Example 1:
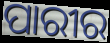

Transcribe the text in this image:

ପାରୀର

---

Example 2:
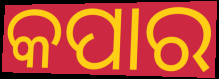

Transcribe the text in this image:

କପାର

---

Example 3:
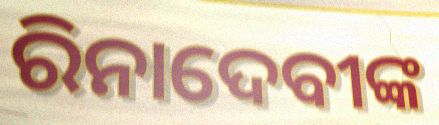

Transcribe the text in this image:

ରିନାଦେବୀଙ୍କ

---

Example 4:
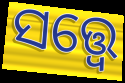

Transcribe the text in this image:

ସତ୍ତ୍ବେ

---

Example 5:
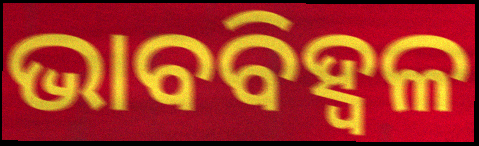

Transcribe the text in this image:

ଭାବବିହ୍ବଳ